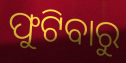
ଫୁଟିବାରୁ